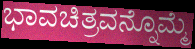
ಭಾವಚಿತ್ರವನ್ನೊಮ್ಮೆ